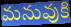
మనువుకి